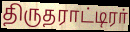
திருதராட்டிரர்